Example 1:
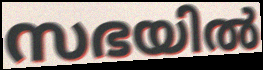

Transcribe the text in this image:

സഭയിൽ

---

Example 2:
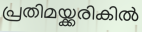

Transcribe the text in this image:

പ്രതിമയ്ക്കരികിൽ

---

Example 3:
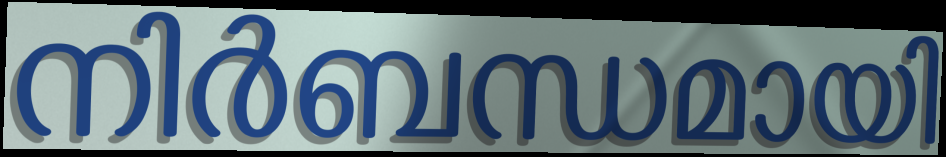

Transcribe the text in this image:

നിർബന്ധമായി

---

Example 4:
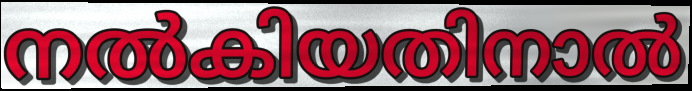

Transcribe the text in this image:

നൽകിയതിനാൽ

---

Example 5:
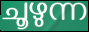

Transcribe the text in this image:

ചൂഴുന്ന